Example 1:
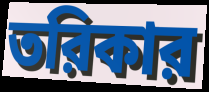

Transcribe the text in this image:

তরিকার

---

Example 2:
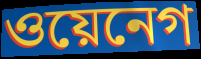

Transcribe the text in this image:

ওয়েনেগ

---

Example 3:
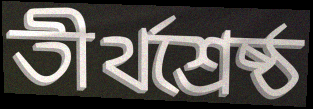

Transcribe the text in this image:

তীর্থশ্রেষ্ঠ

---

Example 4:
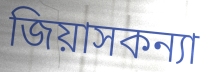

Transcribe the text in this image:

জিয়াসকন্যা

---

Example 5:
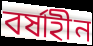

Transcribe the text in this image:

বর্ষাহীন